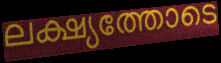
ലക്ഷ്യത്തോടെ